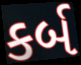
કર્બ